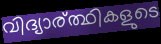
വിദ്യാര്ത്ഥികളുടെ